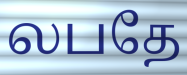
லபதே